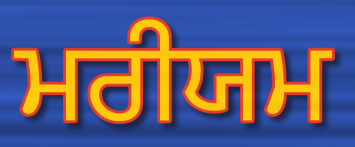
ਮਰੀਯਮ